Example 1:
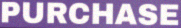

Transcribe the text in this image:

PURCHASE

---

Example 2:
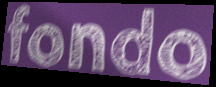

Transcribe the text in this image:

fondo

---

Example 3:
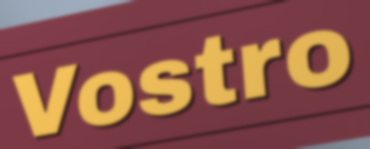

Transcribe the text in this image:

Vostro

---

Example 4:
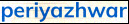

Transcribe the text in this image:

periyazhwar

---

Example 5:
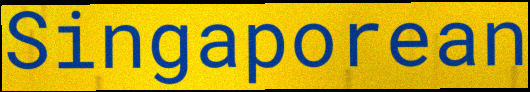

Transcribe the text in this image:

Singaporean